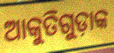
ଆକୁତିଗୁଡ଼ାକ